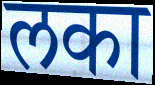
लका